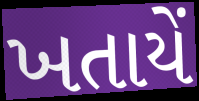
ખતાયેં